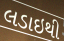
લડાઇથી